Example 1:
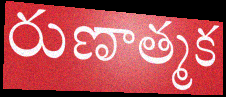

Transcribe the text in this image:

రుణాత్మక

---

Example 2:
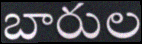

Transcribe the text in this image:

బారుల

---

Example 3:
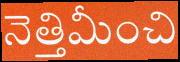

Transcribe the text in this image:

నెత్తిమీంచి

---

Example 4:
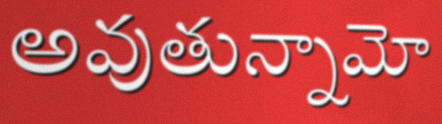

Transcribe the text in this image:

అవుతున్నామో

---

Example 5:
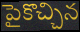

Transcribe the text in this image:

పైకొచ్చిన